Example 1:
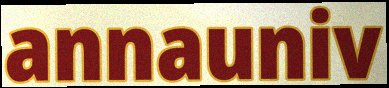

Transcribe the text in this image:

annauniv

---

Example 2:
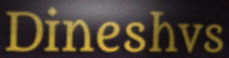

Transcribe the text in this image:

Dineshvs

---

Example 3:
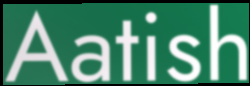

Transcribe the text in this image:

Aatish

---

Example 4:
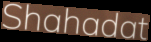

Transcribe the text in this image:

Shahadat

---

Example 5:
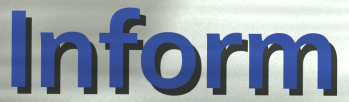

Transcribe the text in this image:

Inform